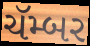
ચૅમ્બર